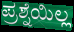
ಪ್ರಶ್ನೆಯಿಲ್ಲ